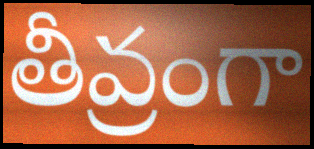
తీవ్రంగా